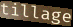
tillage